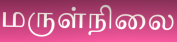
மருள்நிலை